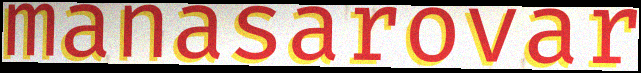
manasarovar